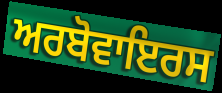
ਅਰਬੋਵਾਇਰਸ